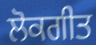
ਲੋਕਗੀਤ